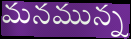
మనమున్న